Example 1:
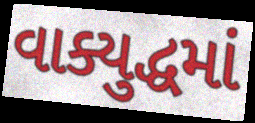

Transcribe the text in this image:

વાક્યુદ્ધમાં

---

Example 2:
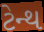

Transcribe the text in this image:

ટેન્થ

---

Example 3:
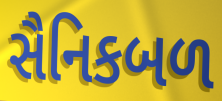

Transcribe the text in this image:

સૈનિકબળ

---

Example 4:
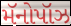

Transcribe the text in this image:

મૅનોપૉઝ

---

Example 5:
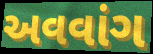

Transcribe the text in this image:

અવવાંગ